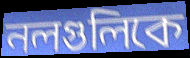
নলগুলিকে